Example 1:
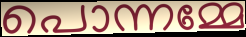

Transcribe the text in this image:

പൊന്നമ്മേ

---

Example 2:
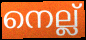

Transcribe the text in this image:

നെല്ല്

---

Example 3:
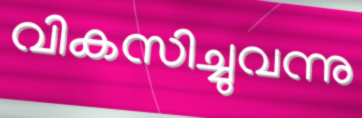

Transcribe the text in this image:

വികസിച്ചുവന്നു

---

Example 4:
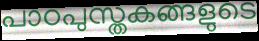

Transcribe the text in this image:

പാഠപുസ്തകങ്ങളുടെ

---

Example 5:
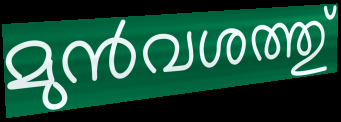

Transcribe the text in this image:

മുൻവശത്തു്